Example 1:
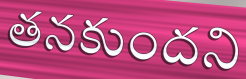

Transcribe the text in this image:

తనకుందని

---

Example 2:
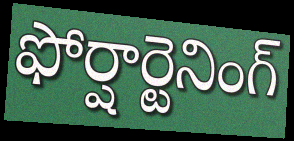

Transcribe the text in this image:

ఫోర్షార్టెనింగ్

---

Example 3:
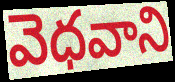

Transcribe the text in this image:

వెధవాని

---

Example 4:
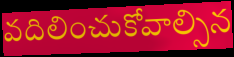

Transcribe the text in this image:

వదిలించుకోవాల్సిన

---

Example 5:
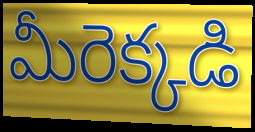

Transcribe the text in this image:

మీరెక్కడి